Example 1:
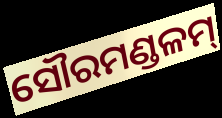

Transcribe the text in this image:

ସୌରମଣ୍ଡଳମ୍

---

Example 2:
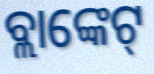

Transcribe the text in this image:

ବ୍ଲାଙ୍କେଟ୍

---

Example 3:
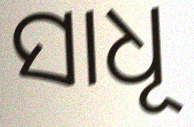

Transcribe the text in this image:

ସାଧୂ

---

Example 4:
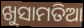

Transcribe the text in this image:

ଖୁସାମତିଆ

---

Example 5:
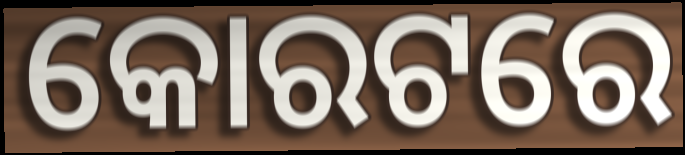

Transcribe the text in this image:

କୋରଟରେ